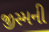
જીસ્મની